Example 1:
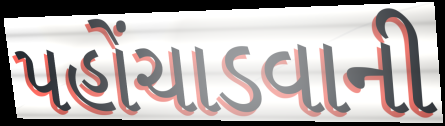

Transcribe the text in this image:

પહોંચાડવાની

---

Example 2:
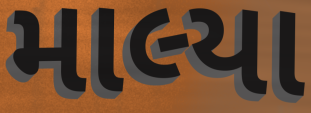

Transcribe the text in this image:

માલ્યા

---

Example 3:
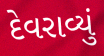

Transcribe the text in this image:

દેવરાવ્યું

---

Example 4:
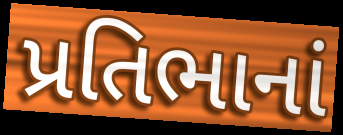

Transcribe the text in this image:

પ્રતિભાનાં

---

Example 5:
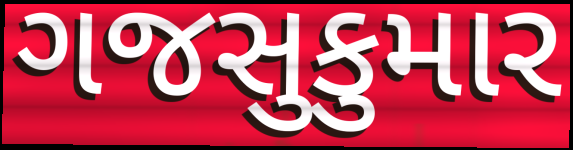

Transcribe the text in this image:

ગજસુકુમાર